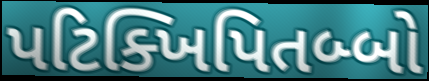
પટિક્ખિપિતબ્બો